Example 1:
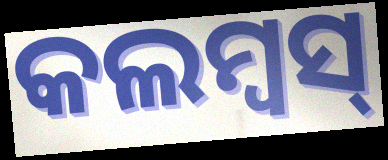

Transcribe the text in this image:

କଲମ୍ବସ୍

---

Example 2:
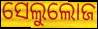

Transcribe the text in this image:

ସେଲୁଲୋଜ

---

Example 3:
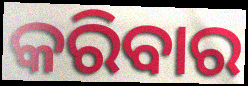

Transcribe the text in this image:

କରିବାର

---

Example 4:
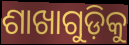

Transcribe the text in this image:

ଶାଖାଗୁଡ଼ିକୁ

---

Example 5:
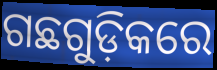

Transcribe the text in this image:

ଗଛଗୁଡ଼ିକରେ